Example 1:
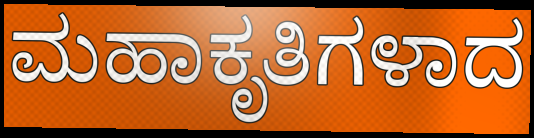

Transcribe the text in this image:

ಮಹಾಕೃತಿಗಳಾದ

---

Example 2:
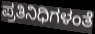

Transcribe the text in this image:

ಪ್ರತಿನಿಧಿಗಳಂತೆ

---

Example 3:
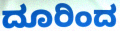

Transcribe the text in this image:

ದೂರಿಂದ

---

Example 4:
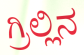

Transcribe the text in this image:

ಗ್ರಿಲ್ಲಿನ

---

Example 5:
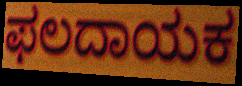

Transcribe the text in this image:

ಫಲದಾಯಕ